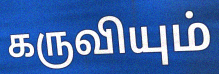
கருவியும்